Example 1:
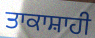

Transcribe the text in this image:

ਤਾਕਾਸ਼ਾਹੀ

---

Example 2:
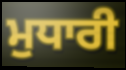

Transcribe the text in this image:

ਮੁਧਾਰੀ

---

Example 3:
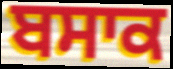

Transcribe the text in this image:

ਬਸਾਕ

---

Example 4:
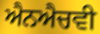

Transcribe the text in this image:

ਐਨਐਚਵੀ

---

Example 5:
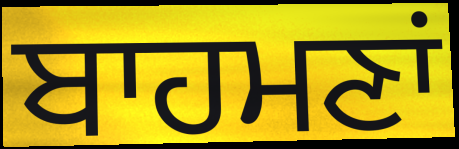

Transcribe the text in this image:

ਬਾਹਮਣਾਂ